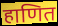
हाणित